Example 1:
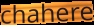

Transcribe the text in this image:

chahere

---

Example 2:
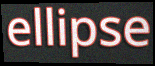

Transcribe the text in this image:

ellipse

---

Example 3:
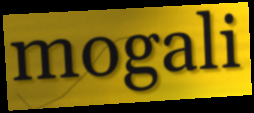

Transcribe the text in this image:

mogali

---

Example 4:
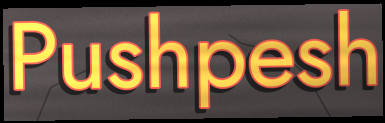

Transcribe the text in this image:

Pushpesh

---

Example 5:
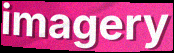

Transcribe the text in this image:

imagery